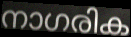
നാഗരിക